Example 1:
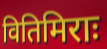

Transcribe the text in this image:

वितिमिराः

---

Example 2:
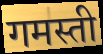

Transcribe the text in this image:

गमस्ती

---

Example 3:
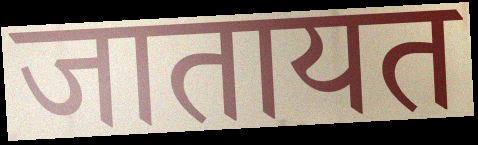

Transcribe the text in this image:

जातायत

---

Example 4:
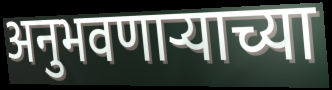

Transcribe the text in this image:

अनुभवणार्‍याच्या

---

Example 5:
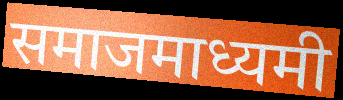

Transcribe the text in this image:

समाजमाध्यमी